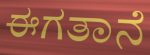
ಈಗತಾನೆ